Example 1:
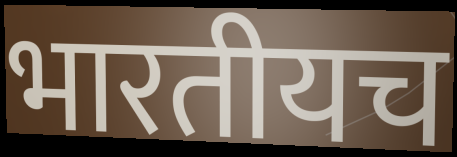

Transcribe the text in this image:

भारतीयच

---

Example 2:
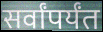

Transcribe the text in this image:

सर्वांपर्यंत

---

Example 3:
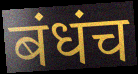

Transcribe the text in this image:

बंधंच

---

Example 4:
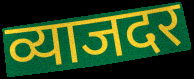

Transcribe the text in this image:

व्याजदर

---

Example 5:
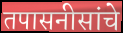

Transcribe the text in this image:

तपासनीसांचे